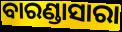
ବାରଣ୍ଡାସାରା